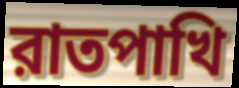
রাতপাখি